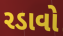
રડાવો